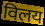
विलय